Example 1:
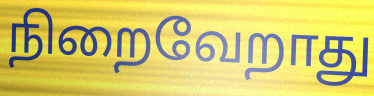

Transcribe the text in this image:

நிறைவேறாது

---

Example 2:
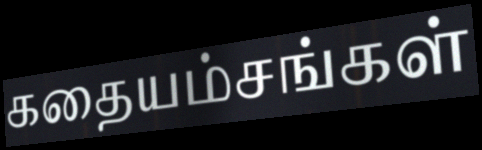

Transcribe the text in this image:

கதையம்சங்கள்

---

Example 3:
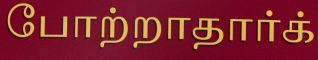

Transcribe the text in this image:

போற்றாதார்க்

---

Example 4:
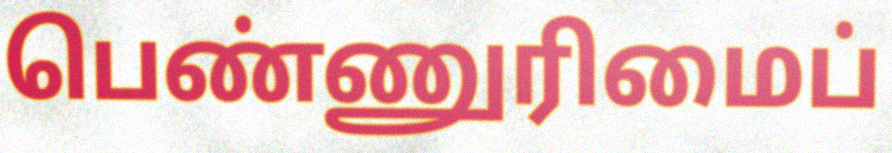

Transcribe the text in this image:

பெண்ணுரிமைப்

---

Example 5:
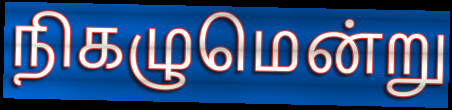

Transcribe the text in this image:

நிகழுமென்று